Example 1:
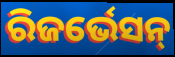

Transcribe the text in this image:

ରିଜର୍ଭେସନ୍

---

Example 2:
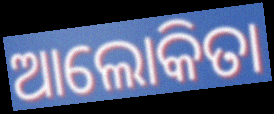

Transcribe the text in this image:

ଆଲୋକିତା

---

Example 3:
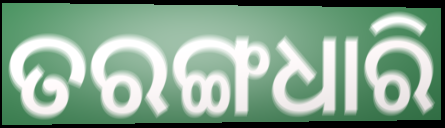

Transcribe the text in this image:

ତରଙ୍ଗଧାରି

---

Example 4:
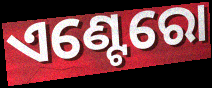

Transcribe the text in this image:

ଏଣ୍ଟେରୋ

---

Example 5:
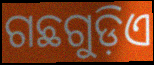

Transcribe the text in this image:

ଗଛଗୁଡ଼ିଏ